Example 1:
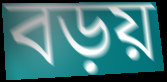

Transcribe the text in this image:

বড়য়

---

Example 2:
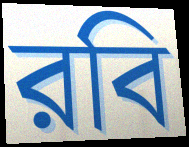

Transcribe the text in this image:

রবি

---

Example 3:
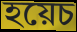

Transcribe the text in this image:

হয়েচ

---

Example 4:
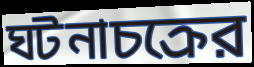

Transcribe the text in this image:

ঘটনাচক্রের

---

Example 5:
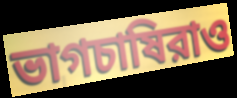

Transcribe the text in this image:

ভাগচাষিরাও